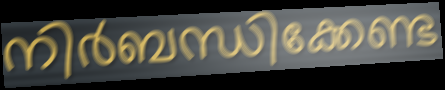
നിർബന്ധിക്കേണ്ട